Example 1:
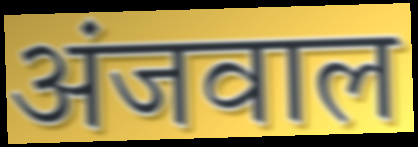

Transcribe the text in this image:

अंजवाल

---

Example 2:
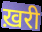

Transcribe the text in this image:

ख़री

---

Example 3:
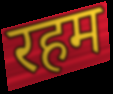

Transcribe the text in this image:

रहम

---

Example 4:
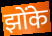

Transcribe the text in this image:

झोंके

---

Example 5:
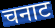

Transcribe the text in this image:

चनाट